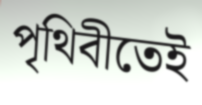
পৃথিবীতেই